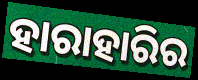
ହାରାହାରିର